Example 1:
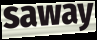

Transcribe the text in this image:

saway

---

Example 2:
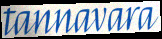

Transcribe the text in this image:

tannavara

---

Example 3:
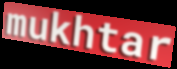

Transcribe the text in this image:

mukhtar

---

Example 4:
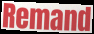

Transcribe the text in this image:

Remand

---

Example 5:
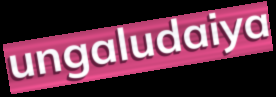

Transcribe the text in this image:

ungaludaiya